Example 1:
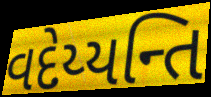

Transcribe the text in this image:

વદેય્યન્તિ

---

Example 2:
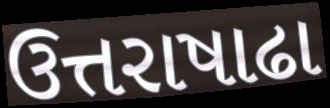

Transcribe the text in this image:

ઉત્તરાષાઢા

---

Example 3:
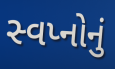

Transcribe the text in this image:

સ્વપ્નોનું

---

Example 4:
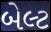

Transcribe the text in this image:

બેલ્ટ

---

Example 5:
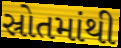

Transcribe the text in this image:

સ્રોતમાંથી